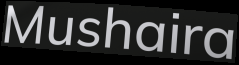
Mushaira